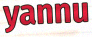
yannu